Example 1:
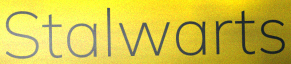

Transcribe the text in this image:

Stalwarts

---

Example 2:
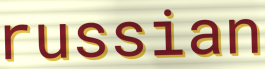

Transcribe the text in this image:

russian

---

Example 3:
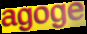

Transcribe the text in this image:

agoge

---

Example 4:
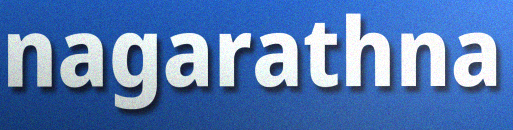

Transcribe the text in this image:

nagarathna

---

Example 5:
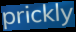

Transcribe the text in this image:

prickly